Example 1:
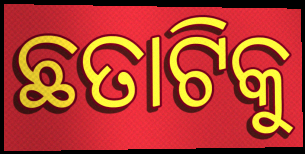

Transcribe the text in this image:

ଛତାଟିକୁ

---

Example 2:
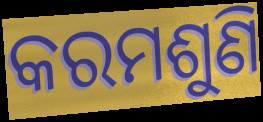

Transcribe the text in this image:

କରମଶୁଣି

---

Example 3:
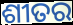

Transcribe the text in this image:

ଶୀତର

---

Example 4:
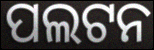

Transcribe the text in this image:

ପଲଟନ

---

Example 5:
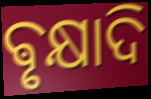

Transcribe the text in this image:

ଵୃକ୍ଷାଦି